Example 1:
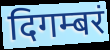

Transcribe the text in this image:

दिगम्बरं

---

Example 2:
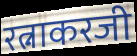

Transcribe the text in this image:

रत्नाकरजी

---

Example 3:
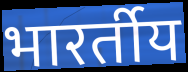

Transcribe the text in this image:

भारर्तीय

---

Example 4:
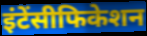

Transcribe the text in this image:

इंटेंसीफिकेशन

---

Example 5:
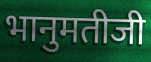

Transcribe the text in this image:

भानुमतीजी